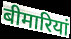
बीमारियां